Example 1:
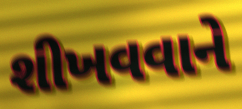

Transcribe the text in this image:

શીખવવાને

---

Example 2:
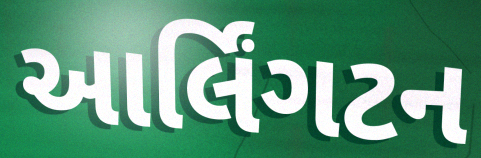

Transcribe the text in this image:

આર્લિંગટન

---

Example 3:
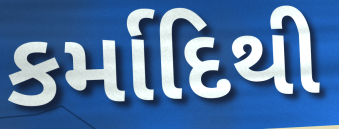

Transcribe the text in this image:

કર્માદિથી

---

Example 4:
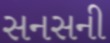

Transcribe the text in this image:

સનસની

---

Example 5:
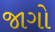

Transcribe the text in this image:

જાગો